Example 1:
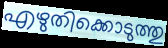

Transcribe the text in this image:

എഴുതിക്കൊടുത്തു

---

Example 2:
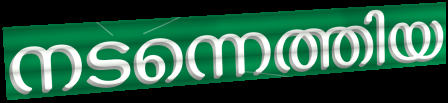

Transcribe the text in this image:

നടന്നെത്തിയ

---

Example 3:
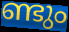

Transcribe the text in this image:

ണ്ടും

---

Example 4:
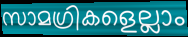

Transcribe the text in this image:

സാമഗ്രികളെല്ലാം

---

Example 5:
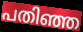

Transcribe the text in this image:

പതിഞ്ഞ